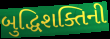
બુદ્ધિશક્તિની